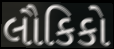
લૌકિકો